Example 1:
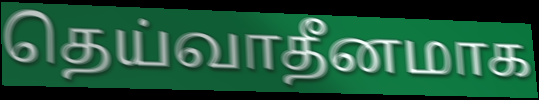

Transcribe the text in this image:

தெய்வாதீனமாக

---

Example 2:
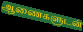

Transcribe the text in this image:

ஆணைகளுடன்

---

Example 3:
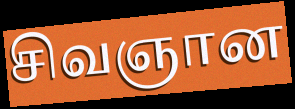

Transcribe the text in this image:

சிவஞான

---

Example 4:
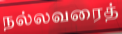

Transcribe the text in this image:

நல்லவரைத்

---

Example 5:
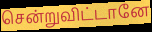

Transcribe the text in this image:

சென்றுவிட்டானே